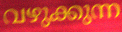
വഴുക്കുന്ന